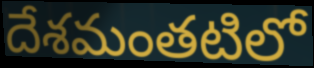
దేశమంతటిలో